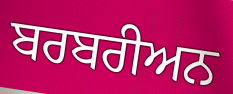
ਬਰਬਰੀਅਨ